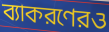
ব্যাকরণেরও